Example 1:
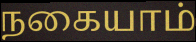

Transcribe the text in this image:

நகையாம்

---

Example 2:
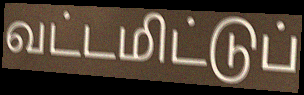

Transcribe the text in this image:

வட்டமிட்டுப்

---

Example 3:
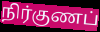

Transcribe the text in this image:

நிர்குணப்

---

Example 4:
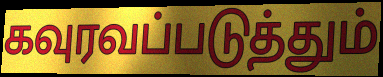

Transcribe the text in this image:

கவுரவப்படுத்தும்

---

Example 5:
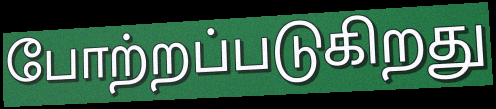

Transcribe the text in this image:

போற்றப்படுகிறது